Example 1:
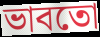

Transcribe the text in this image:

ভাবতো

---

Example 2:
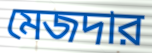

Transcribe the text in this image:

মেজদার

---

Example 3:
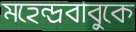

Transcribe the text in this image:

মহেন্দ্রবাবুকে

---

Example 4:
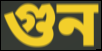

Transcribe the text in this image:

গুন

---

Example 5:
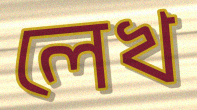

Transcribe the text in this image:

লেখ